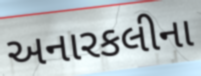
અનારકલીના